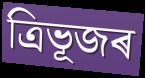
ত্ৰিভূজৰ